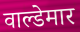
वाल्डेमार